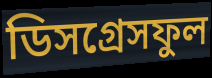
ডিসগ্রেসফুল